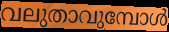
വലുതാവുമ്പോൾ